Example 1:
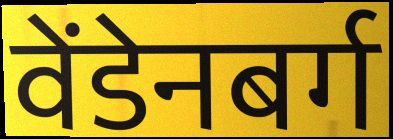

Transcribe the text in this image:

वेंडेनबर्ग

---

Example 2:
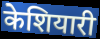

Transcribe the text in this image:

केशियारी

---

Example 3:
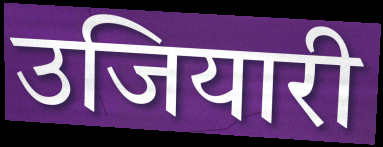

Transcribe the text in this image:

उजियारी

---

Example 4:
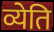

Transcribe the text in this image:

व्येति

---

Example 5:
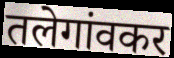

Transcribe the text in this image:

तलेगांवकर